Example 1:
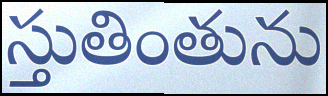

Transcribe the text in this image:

స్తుతింతును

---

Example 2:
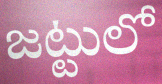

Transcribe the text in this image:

జట్టులో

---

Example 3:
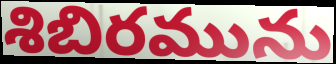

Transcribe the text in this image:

శిబిరమును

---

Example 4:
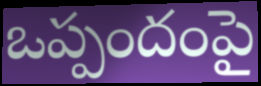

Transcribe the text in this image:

ఒప్పందంపై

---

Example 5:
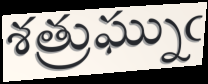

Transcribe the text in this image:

శత్రుఘ్నుఁ